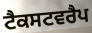
ਟੈਕਸਟਵਰੈਪ